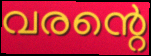
വരന്റെ